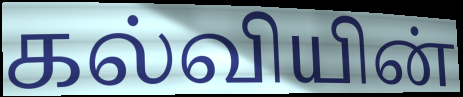
கல்வியின்